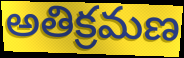
అతిక్రమణ